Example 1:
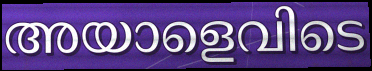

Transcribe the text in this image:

അയാളെവിടെ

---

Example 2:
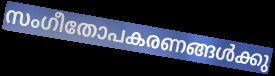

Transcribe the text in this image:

സംഗീതോപകരണങ്ങൾക്കു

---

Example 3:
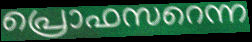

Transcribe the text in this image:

പ്രൊഫസറെന്ന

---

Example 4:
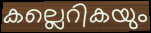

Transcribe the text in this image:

കല്ലെറികയും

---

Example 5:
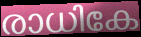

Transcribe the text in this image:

രാധികേ